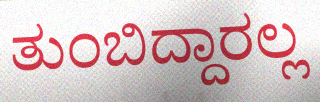
ತುಂಬಿದ್ದಾರಲ್ಲ